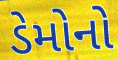
ડેમોનો